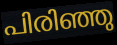
പിരിഞ്ഞു